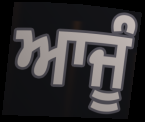
ਆਜੂੰ